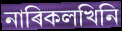
নাৰিকলখিনি